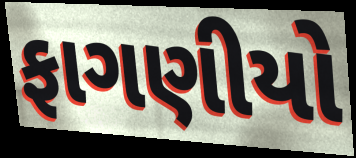
ફાગણીયો